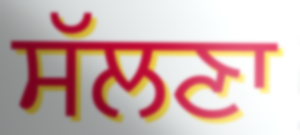
ਸੱਲਣਾ